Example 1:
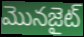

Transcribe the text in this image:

మొనజైట్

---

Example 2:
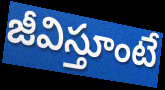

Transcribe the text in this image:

జీవిస్తూంటే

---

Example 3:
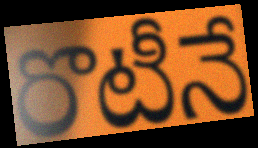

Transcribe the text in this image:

రొటీనే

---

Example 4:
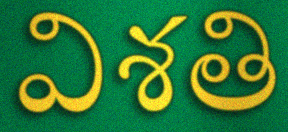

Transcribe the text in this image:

విశతి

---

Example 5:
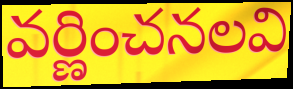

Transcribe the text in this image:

వర్ణించనలవి